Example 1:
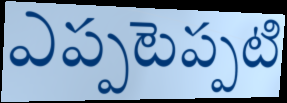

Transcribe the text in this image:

ఎప్పటెప్పటి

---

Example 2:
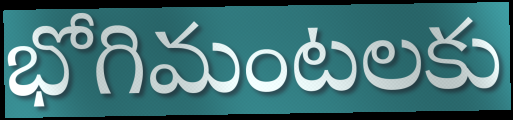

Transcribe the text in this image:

భోగిమంటలకు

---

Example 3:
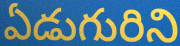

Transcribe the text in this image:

ఏడుగురిని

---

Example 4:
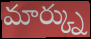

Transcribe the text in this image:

మార్క్ను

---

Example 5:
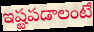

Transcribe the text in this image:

ఇష్టపడాలంటే